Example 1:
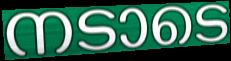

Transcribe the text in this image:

നടാടെ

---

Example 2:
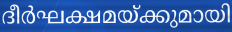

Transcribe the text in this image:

ദീർഘക്ഷമയ്ക്കുമായി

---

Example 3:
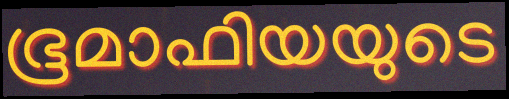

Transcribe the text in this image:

ഭൂമാഫിയയുടെ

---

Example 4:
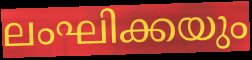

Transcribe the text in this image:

ലംഘിക്കയും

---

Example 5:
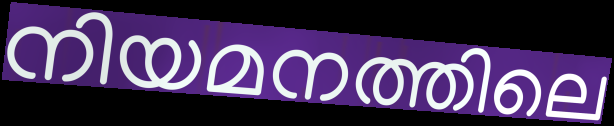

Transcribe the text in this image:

നിയമനത്തിലെ